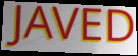
JAVED